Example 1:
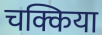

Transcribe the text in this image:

चक्किया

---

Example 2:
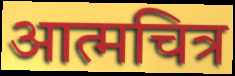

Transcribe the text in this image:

आत्मचित्र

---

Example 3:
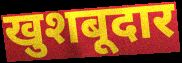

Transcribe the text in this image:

खुशबूदार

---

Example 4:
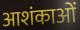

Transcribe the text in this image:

आशंकाओं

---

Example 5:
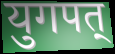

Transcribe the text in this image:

युगपत्